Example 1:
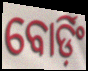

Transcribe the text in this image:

ବୋର୍ଡ଼ିଂ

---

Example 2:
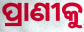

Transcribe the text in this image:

ପ୍ରାଣୀକୁ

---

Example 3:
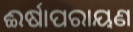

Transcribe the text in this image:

ଈର୍ଷାପରାୟଣ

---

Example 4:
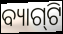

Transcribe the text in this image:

ବ୍ୟାଗ୍‌ଟି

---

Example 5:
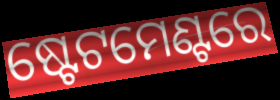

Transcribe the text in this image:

ଷ୍ଟେଟମେଣ୍ଟରେ